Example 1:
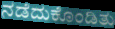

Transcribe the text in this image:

ನಡೆದುಕೊಂಡಿತು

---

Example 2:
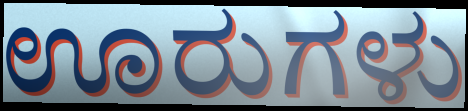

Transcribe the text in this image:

ಊರುಗಳು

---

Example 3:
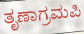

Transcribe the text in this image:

ತೃಣಾಗ್ರಮಪಿ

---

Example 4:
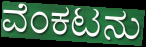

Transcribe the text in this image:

ವೆಂಕಟನು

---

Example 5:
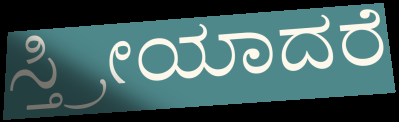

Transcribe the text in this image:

ಸ್ತ್ರೀಯಾದರೆ